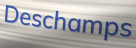
Deschamps